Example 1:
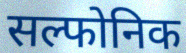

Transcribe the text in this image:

सल्फोनिक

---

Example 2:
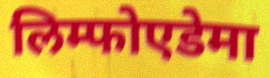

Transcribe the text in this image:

लिम्फोएडेमा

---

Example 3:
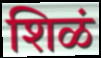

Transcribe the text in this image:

शिळं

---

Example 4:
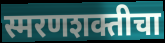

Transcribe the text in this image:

स्मरणशक्तीचा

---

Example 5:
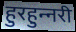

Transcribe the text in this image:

हुरहुन्नरी